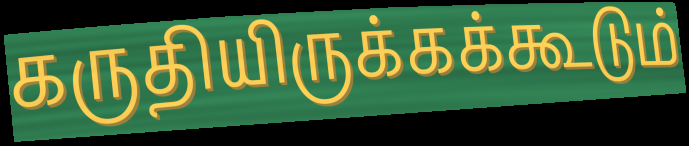
கருதியிருக்கக்கூடும்